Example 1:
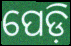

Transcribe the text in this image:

ପେଡ଼ି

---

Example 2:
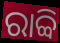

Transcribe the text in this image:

ରାବ୍ବି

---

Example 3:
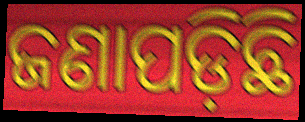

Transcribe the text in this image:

ଜଣାପଡ଼ିଛି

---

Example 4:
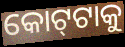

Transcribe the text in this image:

କୋଟ୍‌ଟାକୁ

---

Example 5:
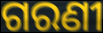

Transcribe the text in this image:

ଗରଣୀ